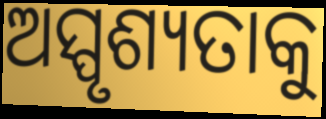
ଅସ୍ପୃଶ୍ୟତାକୁ